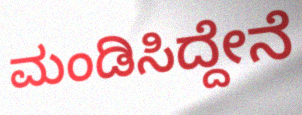
ಮಂಡಿಸಿದ್ದೇನೆ